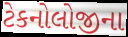
ટેકનોલોજીના